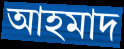
আহমাদ